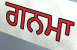
ਗਨਮਾ